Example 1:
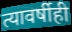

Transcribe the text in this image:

त्यावर्षीही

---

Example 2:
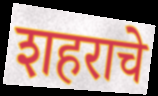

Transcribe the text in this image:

शहराचे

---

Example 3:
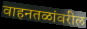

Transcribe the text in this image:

वाहनतळांवरील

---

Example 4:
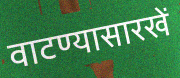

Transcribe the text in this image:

वाटण्यासारखें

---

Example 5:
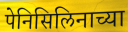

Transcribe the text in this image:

पेनिसिलिनाच्या